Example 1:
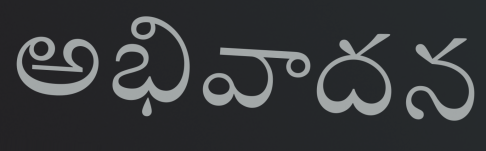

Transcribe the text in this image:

అభివాదన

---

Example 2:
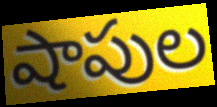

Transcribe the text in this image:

షాపుల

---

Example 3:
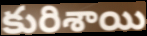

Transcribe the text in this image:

కురిశాయి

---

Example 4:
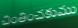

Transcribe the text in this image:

చింతించకుము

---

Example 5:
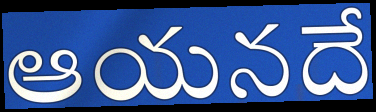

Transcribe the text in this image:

ఆయనదే